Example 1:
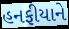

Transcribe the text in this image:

હનફીયાને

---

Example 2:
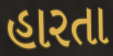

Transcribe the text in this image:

હારતા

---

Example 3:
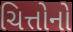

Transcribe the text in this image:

ચિત્તોનો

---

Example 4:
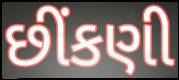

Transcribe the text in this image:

છીંકણી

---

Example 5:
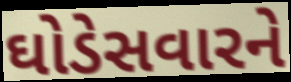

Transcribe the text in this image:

ઘોડેસવારને